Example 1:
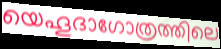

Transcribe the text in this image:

യെഹൂദാഗോത്രത്തിലെ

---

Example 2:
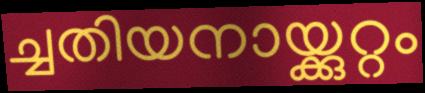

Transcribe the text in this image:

ച്ചതിയനായ്ക്കുറ്റം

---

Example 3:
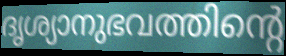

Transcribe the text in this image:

ദൃശ്യാനുഭവത്തിന്റെ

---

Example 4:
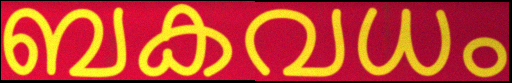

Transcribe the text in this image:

ബകവധം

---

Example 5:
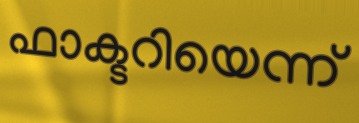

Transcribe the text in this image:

ഫാക്ടറിയെന്ന്